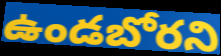
ఉండబోరని